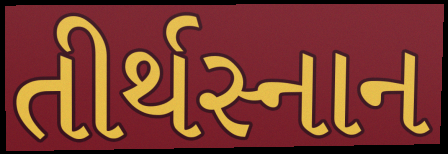
તીર્થસ્નાન